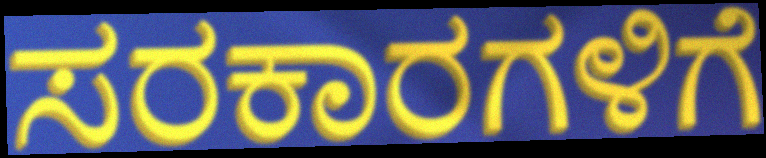
ಸರಕಾರಗಳಿಗೆ